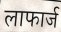
लाफार्ज